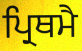
ਪ੍ਰਿਥਮੈ